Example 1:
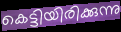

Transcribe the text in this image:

കെട്ടിയിരിക്കുന്നു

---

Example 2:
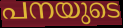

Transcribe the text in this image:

പനയുടെ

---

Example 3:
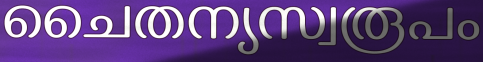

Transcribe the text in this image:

ചൈതന്യസ്വരൂപം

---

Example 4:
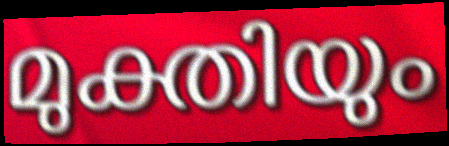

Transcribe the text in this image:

മുക്തിയും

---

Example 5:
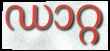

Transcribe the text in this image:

ഡാറ്റ